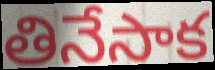
తినేసాక